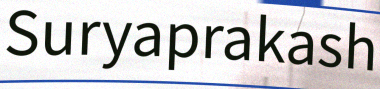
Suryaprakash